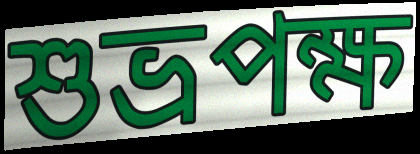
শুভ্রপক্ষ